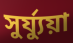
সুর্য্যুয়া